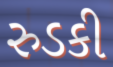
રુડકી